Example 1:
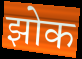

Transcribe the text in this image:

झोक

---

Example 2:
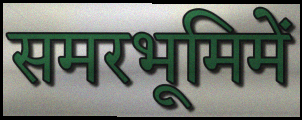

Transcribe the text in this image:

समरभूमिमें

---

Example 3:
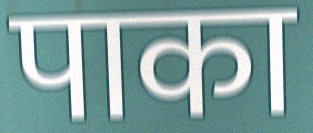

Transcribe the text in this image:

पाका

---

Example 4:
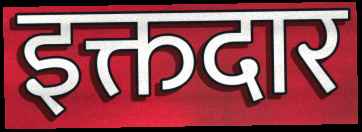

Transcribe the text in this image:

इक्तदार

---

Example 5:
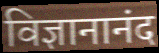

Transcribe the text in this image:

विज्ञानानंद